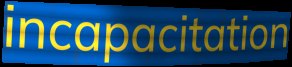
incapacitation